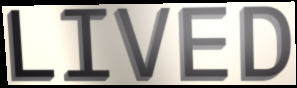
LIVED